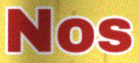
Nos